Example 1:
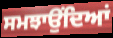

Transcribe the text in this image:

ਸਮਝਾਉਂਦਿਆਂ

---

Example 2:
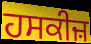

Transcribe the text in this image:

ਹਸਕੀਜ਼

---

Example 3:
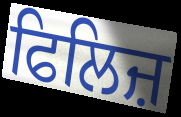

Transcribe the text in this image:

ਫਿਲਿਜ਼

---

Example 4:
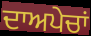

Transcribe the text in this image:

ਦਾਅਪੇਚਾਂ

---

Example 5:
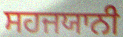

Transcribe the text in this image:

ਸਹਜਯਾਨੀ